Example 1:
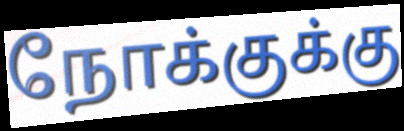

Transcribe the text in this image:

நோக்குக்கு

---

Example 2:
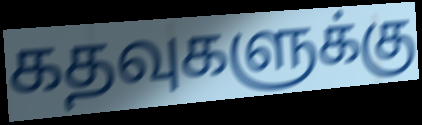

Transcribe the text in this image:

கதவுகளுக்கு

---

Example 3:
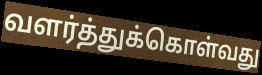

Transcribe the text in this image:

வளர்த்துக்கொள்வது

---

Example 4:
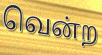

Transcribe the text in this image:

வென்ற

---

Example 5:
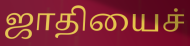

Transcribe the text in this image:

ஜாதியைச்